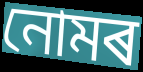
নোমৰ